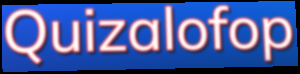
Quizalofop